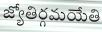
జ్యోతిర్గమయేతి